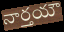
నార్తయౌ